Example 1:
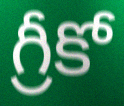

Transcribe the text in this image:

గ్రీకో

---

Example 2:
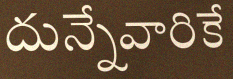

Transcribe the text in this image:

దున్నేవారికే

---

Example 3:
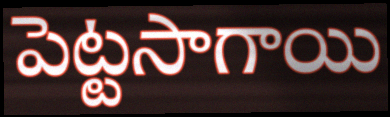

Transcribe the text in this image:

పెట్టసాగాయి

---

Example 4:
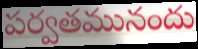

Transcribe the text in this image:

పర్వతమునందు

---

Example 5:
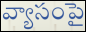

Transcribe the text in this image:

వ్యాసంపై